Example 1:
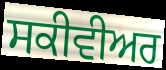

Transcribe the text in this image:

ਸਕੀਵੀਅਰ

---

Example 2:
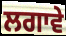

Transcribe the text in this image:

ਲਗਾਵੇ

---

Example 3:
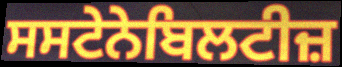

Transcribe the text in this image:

ਸਸਟੇਨੇਬਿਲਟੀਜ਼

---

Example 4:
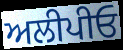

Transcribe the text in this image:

ਅਲੀਪੀਓ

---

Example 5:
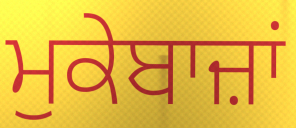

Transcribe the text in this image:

ਮੁਕੇਬਾਜ਼ਾਂ